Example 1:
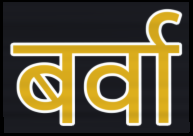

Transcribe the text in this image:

बर्वा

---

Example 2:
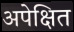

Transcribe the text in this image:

अपेक्षित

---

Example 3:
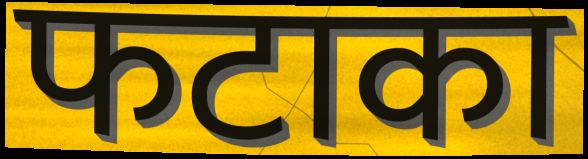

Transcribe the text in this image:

फटाका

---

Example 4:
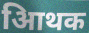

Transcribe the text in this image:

आिथक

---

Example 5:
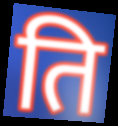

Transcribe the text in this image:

ति